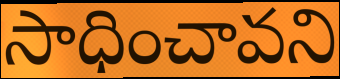
సాధించావని